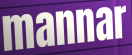
mannar